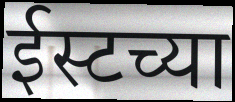
ईस्टच्या